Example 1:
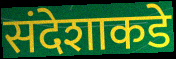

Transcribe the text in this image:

संदेशाकडे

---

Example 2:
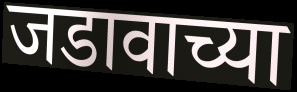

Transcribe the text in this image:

जडावाच्या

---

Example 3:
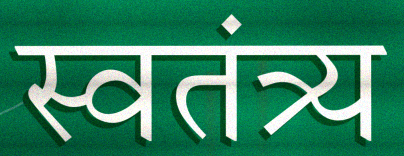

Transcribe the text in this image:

स्वतंत्र्य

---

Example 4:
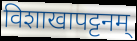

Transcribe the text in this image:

विशाखापट्टनम्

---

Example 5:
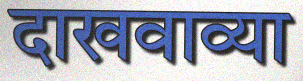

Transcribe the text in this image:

दाखवाव्या